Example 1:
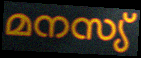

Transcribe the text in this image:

മനസ്യ്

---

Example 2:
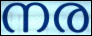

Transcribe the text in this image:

നര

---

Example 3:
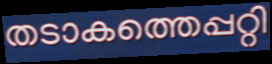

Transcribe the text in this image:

തടാകത്തെപ്പറ്റി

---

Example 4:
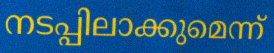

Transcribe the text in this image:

നടപ്പിലാക്കുമെന്ന്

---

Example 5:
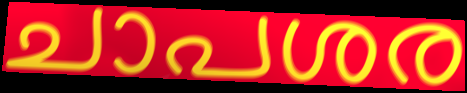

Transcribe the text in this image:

ചാപശര